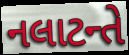
નલાટન્તે